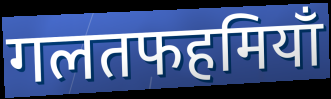
गलतफहमियाँ